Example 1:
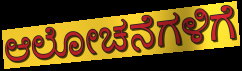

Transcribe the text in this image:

ಆಲೋಚನೆಗಳಿಗೆ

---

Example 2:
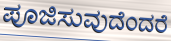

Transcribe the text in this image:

ಪೂಜಿಸುವುದೆಂದರೆ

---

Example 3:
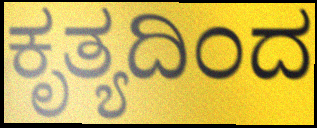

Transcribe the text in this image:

ಕೃತ್ಯದಿಂದ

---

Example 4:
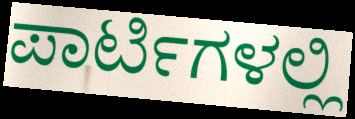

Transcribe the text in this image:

ಪಾರ್ಟಿಗಳಲ್ಲಿ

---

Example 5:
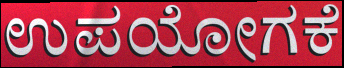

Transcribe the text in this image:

ಉಪಯೋಗಕೆ